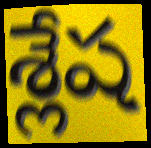
శ్లేష